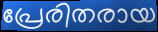
പ്രേരിതരായ